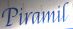
Piramil